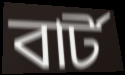
বাৰ্ট